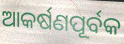
ଆକର୍ଷଣପୂର୍ବକ